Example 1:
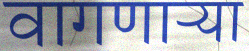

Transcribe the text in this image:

वागणाऱ्या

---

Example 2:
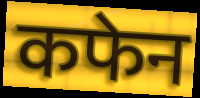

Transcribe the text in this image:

कफेन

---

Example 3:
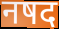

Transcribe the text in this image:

नषद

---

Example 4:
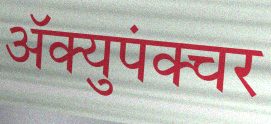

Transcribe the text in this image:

ॲक्युपंक्चर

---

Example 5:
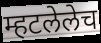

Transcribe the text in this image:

म्हटलेलेच